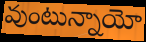
వుంటున్నాయో